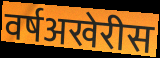
वर्षअखेरीस